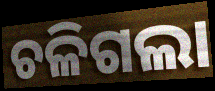
ଚଳିଗଲା